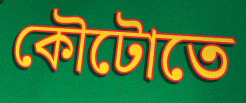
কৌটোতে